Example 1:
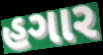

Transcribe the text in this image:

હગાર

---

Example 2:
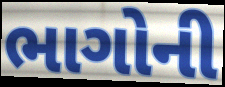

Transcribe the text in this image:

ભાગોની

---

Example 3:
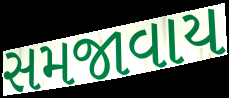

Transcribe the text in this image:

સમજાવાય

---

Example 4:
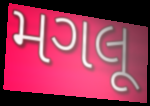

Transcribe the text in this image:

મગલૂ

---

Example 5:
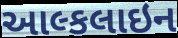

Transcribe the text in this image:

આલ્કલાઇન